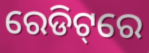
ରେଡିଟ୍‌ରେ